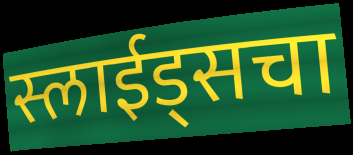
स्लाईड्सचा